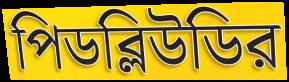
পিডব্লিউডির